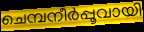
ചെമ്പനീർപ്പൂവായി